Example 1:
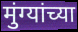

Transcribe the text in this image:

मुंग्यांच्या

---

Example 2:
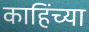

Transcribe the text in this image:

काहिंच्या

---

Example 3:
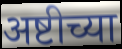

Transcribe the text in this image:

अष्टीच्या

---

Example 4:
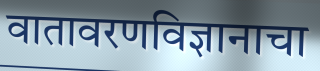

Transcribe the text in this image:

वातावरणविज्ञानाचा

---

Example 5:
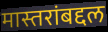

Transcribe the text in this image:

मास्तरांबद्दल